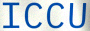
ICCU